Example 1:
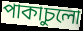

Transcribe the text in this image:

পাকাচুলো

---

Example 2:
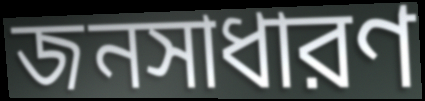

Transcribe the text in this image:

জনসাধারণ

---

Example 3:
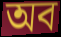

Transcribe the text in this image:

অব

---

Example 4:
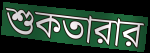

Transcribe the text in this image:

শুকতারার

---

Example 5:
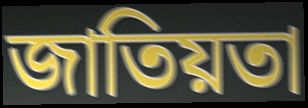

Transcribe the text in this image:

জাতিয়তা